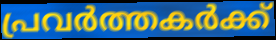
പ്രവർത്തകർക്ക്